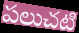
పలుచటి